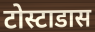
टोस्टाडास